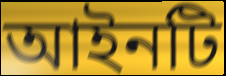
আইনটি